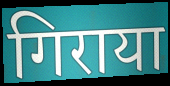
गिराया